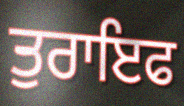
ਤੁਰਾਇਫ